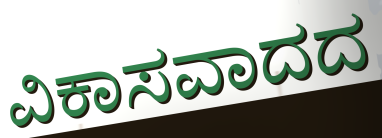
ವಿಕಾಸವಾದದ